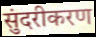
सुंदरीकरण